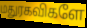
மதுரகவிகளே